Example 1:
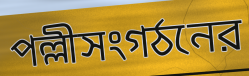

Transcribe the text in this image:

পল্লীসংগঠনের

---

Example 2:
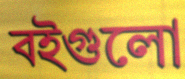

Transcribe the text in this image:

বইগুলো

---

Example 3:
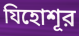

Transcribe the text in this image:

যিহোশূর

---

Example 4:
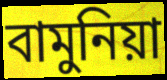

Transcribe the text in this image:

বামুনিয়া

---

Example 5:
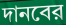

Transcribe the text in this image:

দানবের